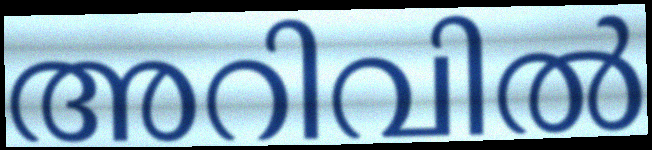
അറിവിൽ